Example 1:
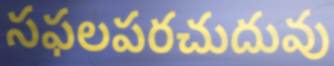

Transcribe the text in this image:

సఫలపరచుదువు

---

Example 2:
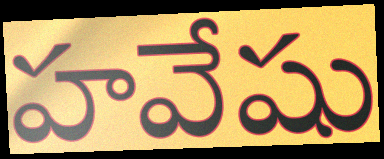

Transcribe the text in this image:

హవేషు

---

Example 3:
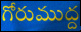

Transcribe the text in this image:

గోరుముద్ద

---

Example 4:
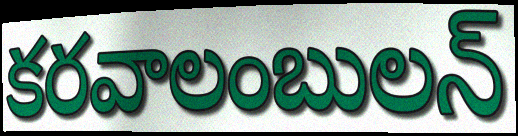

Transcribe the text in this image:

కరవాలంబులన్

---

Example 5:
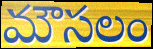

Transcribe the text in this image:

మౌసలం